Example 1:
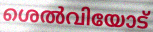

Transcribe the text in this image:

ശെൽവിയോട്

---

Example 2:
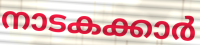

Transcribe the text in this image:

നാടകക്കാർ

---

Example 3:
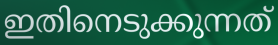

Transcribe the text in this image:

ഇതിനെടുക്കുന്നത്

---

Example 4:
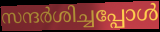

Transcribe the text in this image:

സന്ദർശിച്ചപ്പോൾ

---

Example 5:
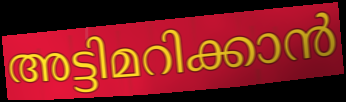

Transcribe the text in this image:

അട്ടിമറിക്കാൻ